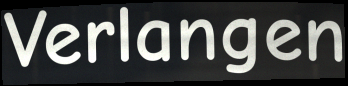
Verlangen